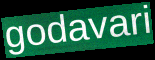
godavari